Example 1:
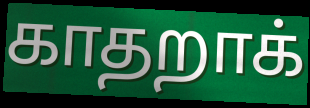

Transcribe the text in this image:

காதறாக்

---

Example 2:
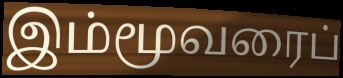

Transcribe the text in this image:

இம்மூவரைப்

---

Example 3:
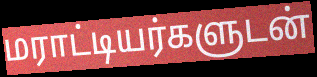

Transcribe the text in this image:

மராட்டியர்களுடன்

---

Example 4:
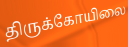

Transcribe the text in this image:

திருக்கோயிலை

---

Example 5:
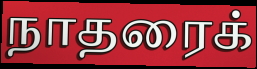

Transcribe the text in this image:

நாதரைக்